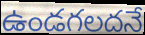
ఉండగలదనే